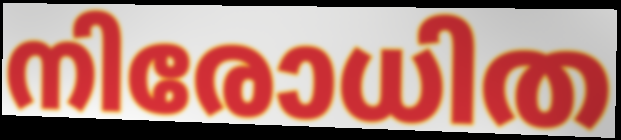
നിരോധിത